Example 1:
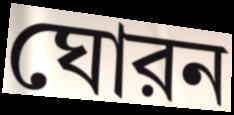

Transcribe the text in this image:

ঘোরন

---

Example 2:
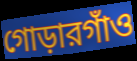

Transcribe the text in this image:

গোড়ারগাঁও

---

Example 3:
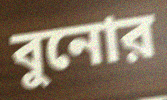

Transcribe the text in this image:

বুনোর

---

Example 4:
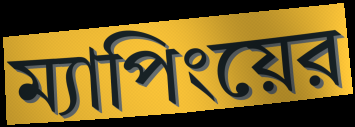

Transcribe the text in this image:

ম্যাপিংয়ের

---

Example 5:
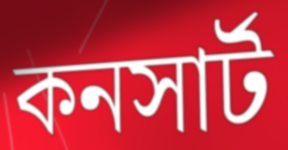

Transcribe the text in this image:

কনসার্ট